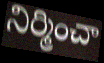
నిర్మించా